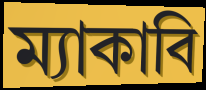
ম্যাকাবি